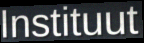
Instituut